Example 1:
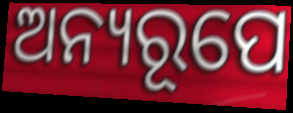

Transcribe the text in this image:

ଅନ୍ୟରୂପେ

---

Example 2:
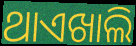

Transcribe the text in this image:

ଥାଏଖାଲି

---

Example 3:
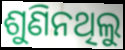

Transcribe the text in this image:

ଶୁଣିନଥିଲୁ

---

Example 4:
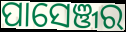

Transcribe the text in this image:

ପାସେଞ୍ଜର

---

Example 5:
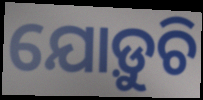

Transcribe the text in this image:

ଯୋଡ଼ୁଚି